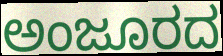
ಅಂಜೂರದ